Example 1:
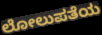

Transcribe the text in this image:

ಲೋಲುಪತೆಯ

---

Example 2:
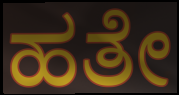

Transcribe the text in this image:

ಹತೇ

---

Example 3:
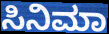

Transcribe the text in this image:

ಸಿನಿಮಾ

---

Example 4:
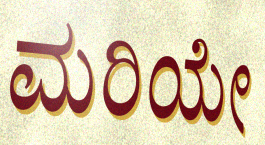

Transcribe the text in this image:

ಮರಿಯೇ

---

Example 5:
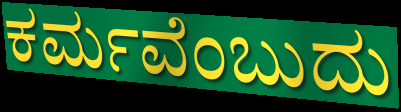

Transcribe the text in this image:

ಕರ್ಮವೆಂಬುದು